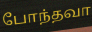
போந்தவா